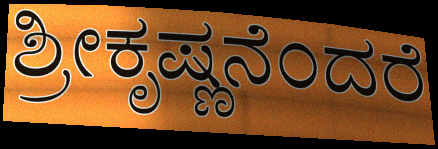
ಶ್ರೀಕೃಷ್ಣನೆಂದರೆ